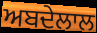
ਅਬਦੇਲਾਲ